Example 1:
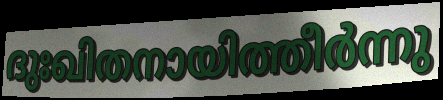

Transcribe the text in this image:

ദുഃഖിതനായിത്തീർന്നു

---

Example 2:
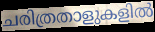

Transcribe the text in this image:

ചരിത്രതാളുകളിൽ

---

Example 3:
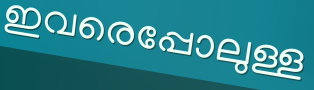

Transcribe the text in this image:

ഇവരെപ്പോലുള്ള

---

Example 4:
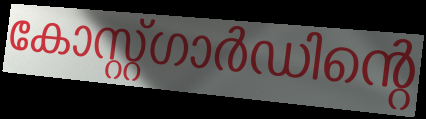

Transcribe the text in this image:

കോസ്റ്റ്ഗാർഡിന്റെ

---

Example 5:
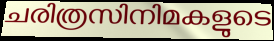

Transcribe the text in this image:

ചരിത്രസിനിമകളുടെ